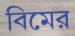
বিমের